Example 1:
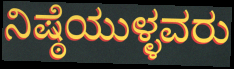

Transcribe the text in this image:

ನಿಷ್ಠೆಯುಳ್ಳವರು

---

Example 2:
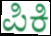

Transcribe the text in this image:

ಪಿಕಿ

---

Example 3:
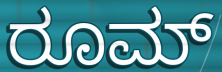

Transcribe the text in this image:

ರೂಮ್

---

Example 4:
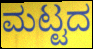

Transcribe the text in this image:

ಮಟ್ಟದ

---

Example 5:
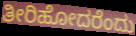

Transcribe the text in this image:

ತೀರಿಹೋದರೆಂದು